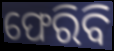
ଫେରିବି